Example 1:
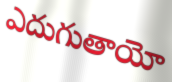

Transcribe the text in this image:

ఎదుగుతాయో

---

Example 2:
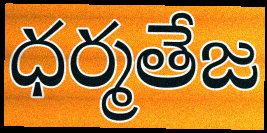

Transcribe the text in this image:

ధర్మతేజ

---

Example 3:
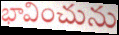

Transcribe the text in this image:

భావించును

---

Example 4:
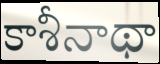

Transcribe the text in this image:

కాశీనాథా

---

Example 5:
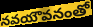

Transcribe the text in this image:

నవయౌవనంతో